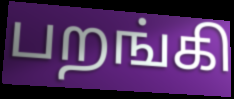
பறங்கி